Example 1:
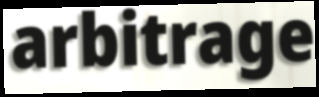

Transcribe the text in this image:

arbitrage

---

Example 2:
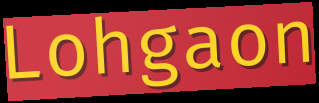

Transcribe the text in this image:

Lohgaon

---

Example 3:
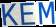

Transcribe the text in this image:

KEM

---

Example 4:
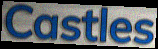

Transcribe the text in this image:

Castles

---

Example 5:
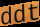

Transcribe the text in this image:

ddt